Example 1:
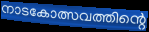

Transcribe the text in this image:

നാടകോത്സവത്തിന്റെ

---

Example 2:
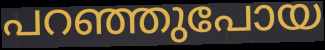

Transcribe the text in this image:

പറഞ്ഞുപോയ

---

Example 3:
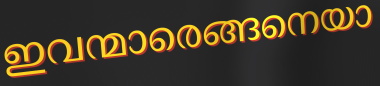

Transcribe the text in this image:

ഇവന്മാരെങ്ങനെയാ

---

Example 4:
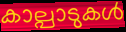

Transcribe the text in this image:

കാല്പാടുകൾ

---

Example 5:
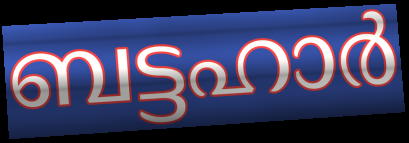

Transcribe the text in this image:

ബട്ടഹാർ